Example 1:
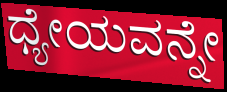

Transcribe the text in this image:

ಧ್ಯೇಯವನ್ನೇ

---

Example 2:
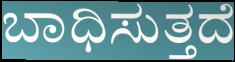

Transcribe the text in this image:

ಬಾಧಿಸುತ್ತದೆ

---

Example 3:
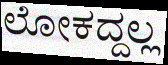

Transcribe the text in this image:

ಲೋಕದ್ದಲ್ಲ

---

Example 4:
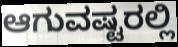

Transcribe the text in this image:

ಆಗುವಷ್ಟರಲ್ಲಿ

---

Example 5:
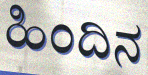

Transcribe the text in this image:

ಹಿಂದಿನ